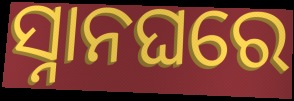
ସ୍ନାନଘରେ